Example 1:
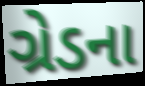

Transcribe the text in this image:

ગ્રેડના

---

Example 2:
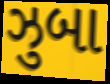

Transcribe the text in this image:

ઝુબા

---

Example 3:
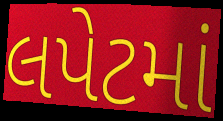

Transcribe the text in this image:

લપેટમાં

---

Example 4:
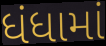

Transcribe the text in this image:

ધંધામાં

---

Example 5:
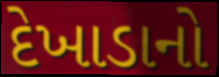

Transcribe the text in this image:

દેખાડાનો